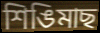
শিঙিমাছ